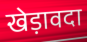
खेड़ावदा